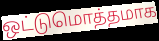
ஒட்டுமொத்தமாக